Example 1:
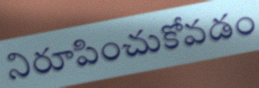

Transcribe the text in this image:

నిరూపించుకోవడం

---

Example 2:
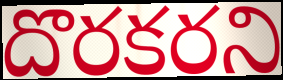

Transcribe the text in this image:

దొరకరని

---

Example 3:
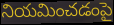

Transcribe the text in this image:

నియమించడంపై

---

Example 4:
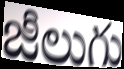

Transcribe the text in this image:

జీలుగు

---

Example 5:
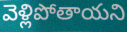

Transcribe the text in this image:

వెళ్లిపోతాయని